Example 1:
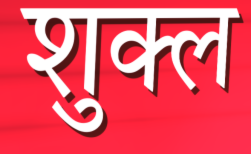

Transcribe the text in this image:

शुक्‍ल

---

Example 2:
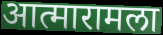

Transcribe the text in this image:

आत्मारामला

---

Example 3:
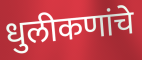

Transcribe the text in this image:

धुलीकणांचे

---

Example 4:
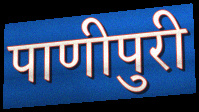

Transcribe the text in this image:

पाणीपुरी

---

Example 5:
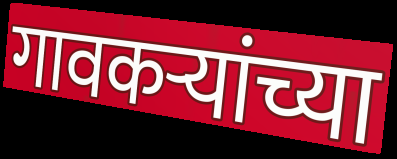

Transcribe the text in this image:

गावकर्‍यांच्या